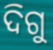
ଦିଗୁ